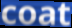
coat